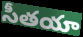
సీతయా